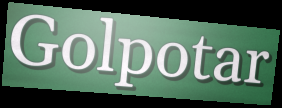
Golpotar